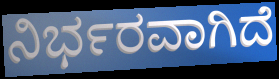
ನಿರ್ಭರವಾಗಿದೆ